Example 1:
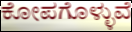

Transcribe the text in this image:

ಕೋಪಗೊಳ್ಳುವೆ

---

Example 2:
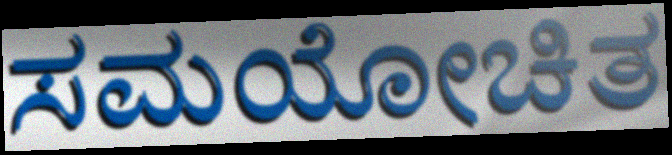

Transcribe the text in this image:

ಸಮಯೋಚಿತ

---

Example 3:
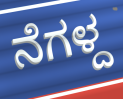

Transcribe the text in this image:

ನೆಗಳ್ದ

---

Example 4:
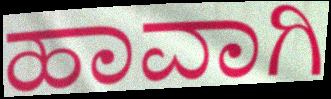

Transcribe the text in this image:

ಹಾವಾಗಿ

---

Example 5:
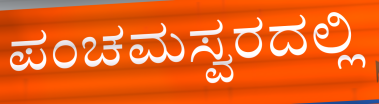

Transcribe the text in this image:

ಪಂಚಮಸ್ವರದಲ್ಲಿ